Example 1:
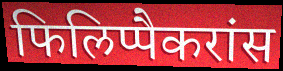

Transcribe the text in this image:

फिलिप्पैकरांस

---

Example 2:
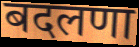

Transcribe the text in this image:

बदलणा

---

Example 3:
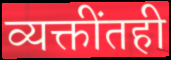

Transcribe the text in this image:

व्यक्तींतही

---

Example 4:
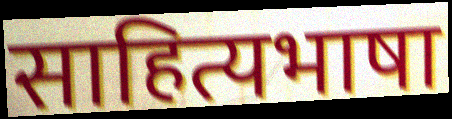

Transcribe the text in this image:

साहित्यभाषा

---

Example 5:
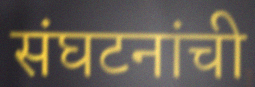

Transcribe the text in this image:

संघटनांची